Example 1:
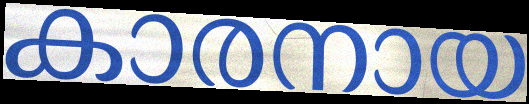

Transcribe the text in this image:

കാരനായ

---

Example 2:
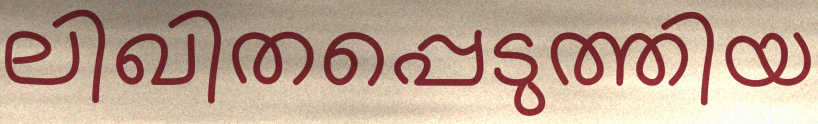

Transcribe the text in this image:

ലിഖിതപ്പെടുത്തിയ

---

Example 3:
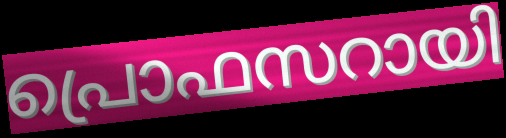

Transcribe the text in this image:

പ്രൊഫസറായി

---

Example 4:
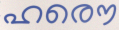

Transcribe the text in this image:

ഹരൌ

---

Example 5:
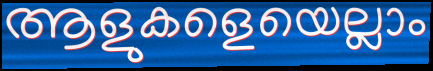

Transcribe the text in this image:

ആളുകളെയെല്ലാം